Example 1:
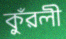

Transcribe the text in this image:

কুঁৱলী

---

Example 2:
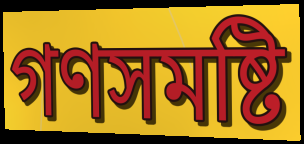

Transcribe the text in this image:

গণসমষ্টি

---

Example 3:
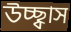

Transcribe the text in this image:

উচ্ছ্বাস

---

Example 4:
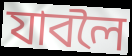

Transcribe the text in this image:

যাবলৈ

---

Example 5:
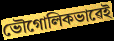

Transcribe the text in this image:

ভৌগোলিকভাৱেই